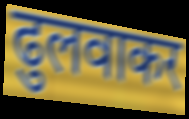
ढुलवाकर